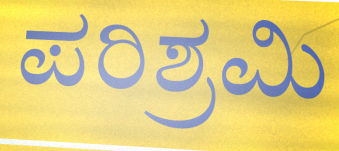
ಪರಿಶ್ರಮಿ